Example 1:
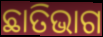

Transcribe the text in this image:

ଛାତିଭାଗ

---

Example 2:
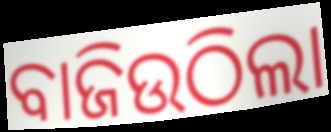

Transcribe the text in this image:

ବାଜିଉଠିଲା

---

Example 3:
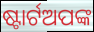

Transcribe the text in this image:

ଷ୍ଟାର୍ଟଅପଙ୍କ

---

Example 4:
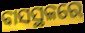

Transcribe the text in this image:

ବାସସ୍ଥଳରେ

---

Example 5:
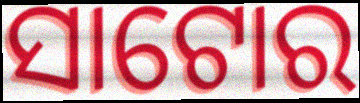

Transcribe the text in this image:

ସାଟୋର